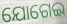
ଯୋଗେଇ